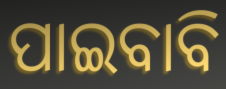
ପାଇବାବି